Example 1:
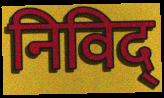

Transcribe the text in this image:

निविद्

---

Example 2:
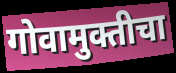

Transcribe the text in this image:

गोवामुक्तीचा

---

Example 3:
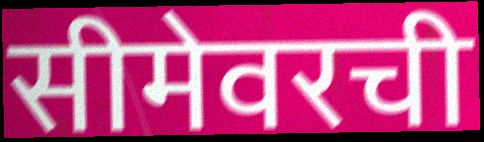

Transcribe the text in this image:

सीमेवरची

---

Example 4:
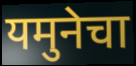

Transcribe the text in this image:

यमुनेचा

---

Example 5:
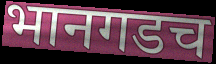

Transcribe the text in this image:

भानगडच